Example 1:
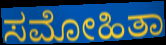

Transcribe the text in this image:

ಸಮೋಹಿತಾ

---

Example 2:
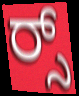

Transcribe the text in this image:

ರ್‍ಸ್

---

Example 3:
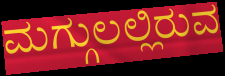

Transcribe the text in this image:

ಮಗ್ಗುಲಲ್ಲಿರುವ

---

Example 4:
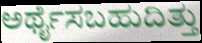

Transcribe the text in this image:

ಅರ್ಥೈಸಬಹುದಿತ್ತು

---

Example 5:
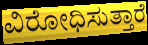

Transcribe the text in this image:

ವಿರೋಧಿಸುತ್ತಾರೆ